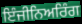
ਇੰਜੀਨਿਅਰਿੰਗ